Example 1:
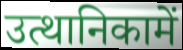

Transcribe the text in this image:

उत्थानिकामें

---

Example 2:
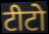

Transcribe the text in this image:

टीटो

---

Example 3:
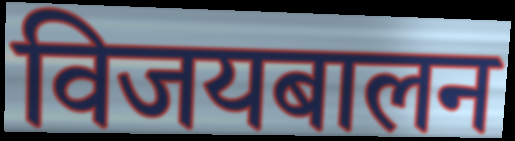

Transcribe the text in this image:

विजयबालन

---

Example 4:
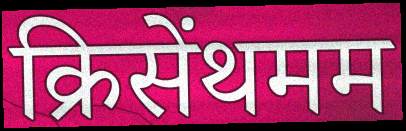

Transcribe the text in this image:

क्रिसेंथमम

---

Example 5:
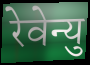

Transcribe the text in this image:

रेवेन्यु